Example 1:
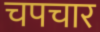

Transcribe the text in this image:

चपचार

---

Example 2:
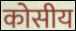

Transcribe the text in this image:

कोसीय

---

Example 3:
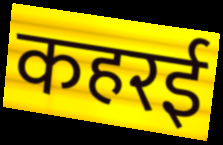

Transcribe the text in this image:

कहरई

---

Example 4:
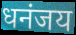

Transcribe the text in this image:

धनंजय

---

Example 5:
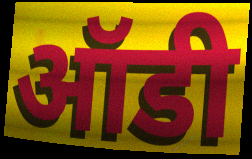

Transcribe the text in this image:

ऑडी